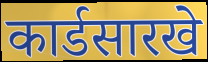
कार्डसारखे